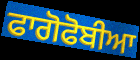
ਫਾਗੋਫੋਬੀਆ